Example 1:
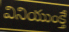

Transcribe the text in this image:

వినియుంక్తే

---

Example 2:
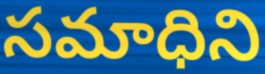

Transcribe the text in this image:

సమాధిని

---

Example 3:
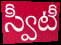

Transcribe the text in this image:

స్వీటీ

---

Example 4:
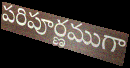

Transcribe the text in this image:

పరిపూర్ణముగా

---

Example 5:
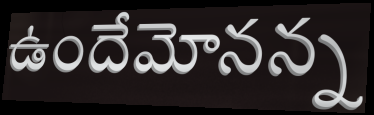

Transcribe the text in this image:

ఉందేమోనన్న